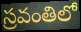
స్రవంతిలో